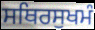
ਸਥਿਰਸੁਖਮੰ